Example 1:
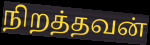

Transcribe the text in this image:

நிறத்தவன்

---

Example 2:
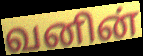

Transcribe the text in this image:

வனின்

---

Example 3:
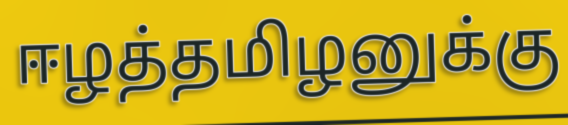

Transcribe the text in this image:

ஈழத்தமிழனுக்கு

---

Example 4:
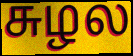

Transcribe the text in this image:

சுழல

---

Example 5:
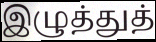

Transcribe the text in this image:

இழுத்துத்